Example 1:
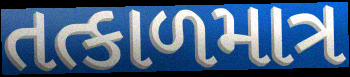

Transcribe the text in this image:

તત્કાળમાત્ર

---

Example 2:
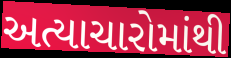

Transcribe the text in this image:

અત્યાચારોમાંથી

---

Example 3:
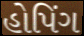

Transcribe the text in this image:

હોપિંગ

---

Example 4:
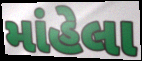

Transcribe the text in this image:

માંહેલા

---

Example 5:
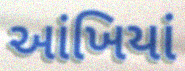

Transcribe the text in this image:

આંખિયાં